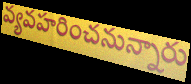
వ్యవహరించనున్నారు